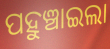
ପହୁଞ୍ଚାଇଲା